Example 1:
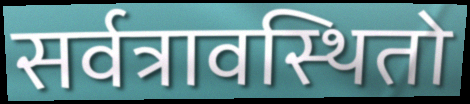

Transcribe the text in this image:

सर्वत्रावस्थितो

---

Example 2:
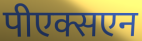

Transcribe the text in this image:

पीएक्सएन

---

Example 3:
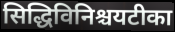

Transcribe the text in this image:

सिद्धिविनिश्चयटीका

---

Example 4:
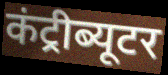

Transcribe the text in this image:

कंट्रीब्यूटर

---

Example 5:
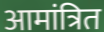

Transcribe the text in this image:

आमांत्रित